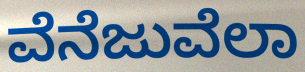
ವೆನೆಜುವೆಲಾ